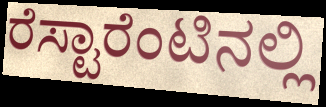
ರೆಸ್ಟಾರೆಂಟಿನಲ್ಲಿ